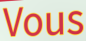
Vous